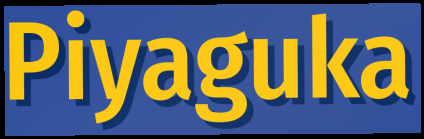
Piyaguka